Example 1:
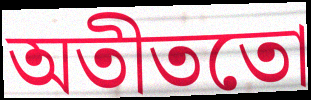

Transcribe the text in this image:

অতীততো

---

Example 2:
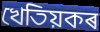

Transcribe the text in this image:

খেতিয়কৰ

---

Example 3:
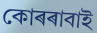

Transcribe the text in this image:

কোৰৰাবাই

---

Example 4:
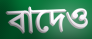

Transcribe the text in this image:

বাদেও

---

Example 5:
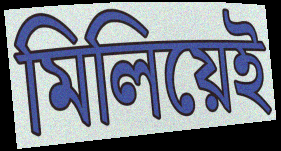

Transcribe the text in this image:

মিলিয়েই